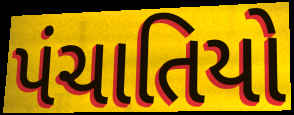
પંચાતિયો